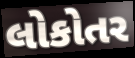
લોકોતર